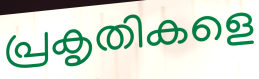
പ്രകൃതികളെ